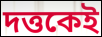
দত্তকেই